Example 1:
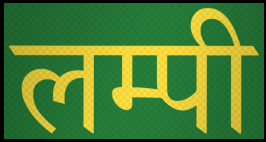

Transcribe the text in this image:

लम्पी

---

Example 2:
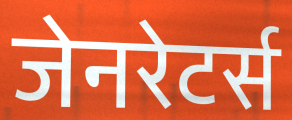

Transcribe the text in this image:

जेनरेटर्स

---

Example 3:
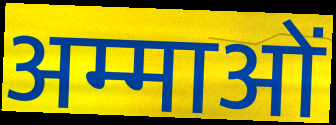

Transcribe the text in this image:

अम्माओं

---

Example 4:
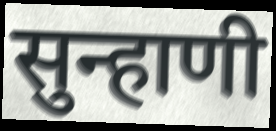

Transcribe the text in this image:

सुन्हाणी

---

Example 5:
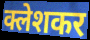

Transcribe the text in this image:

क्लेशकर